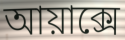
আয়াক্সে